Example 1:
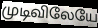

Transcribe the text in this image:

முடிவிலேயே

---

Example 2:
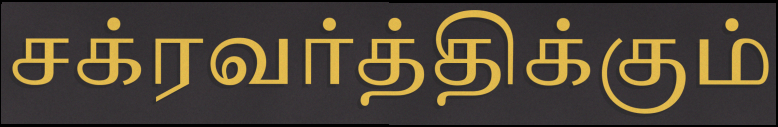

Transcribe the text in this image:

சக்ரவர்த்திக்கும்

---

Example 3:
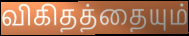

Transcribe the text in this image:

விகிதத்தையும்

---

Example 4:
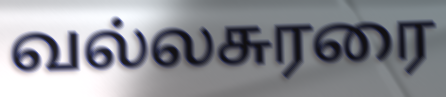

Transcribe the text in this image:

வல்லசுரரை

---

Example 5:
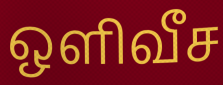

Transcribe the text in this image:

ஒளிவீச